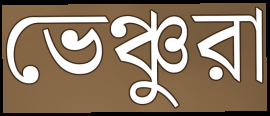
ভেঞ্চুরা